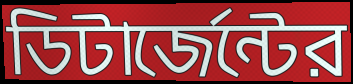
ডিটার্জেন্টের